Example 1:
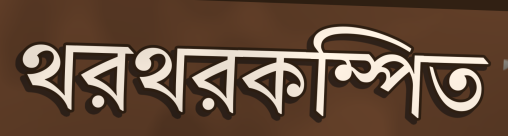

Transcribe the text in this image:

থরথরকম্পিত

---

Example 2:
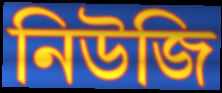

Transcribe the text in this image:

নিউজি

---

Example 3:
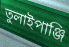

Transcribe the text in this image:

তুলাইপাঞ্জি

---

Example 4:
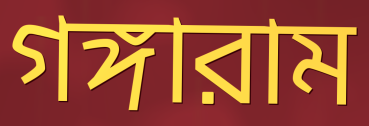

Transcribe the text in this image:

গঙ্গারাম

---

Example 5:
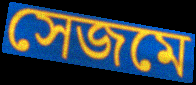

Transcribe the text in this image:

সেজমে